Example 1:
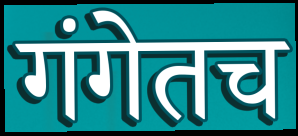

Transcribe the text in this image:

गंगेतच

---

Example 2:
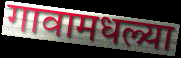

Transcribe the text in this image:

गावामधल्या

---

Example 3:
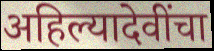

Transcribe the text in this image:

अहिल्यादेवींचा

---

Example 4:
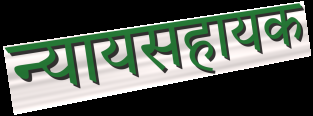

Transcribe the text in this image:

न्यायसहायक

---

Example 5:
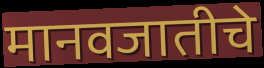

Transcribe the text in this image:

मानवजातीचे